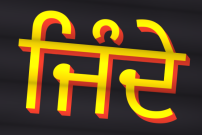
ਜਿੰਦੇ